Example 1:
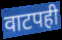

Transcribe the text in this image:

वाटपही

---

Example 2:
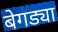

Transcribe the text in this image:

बेगड्या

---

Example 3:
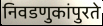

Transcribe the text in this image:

निवडणुकांपुरते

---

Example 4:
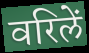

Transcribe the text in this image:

वरिलें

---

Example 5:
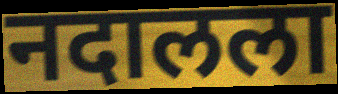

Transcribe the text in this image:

नदालला